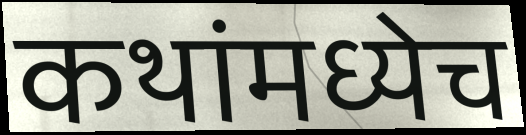
कथांमध्येच